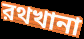
রথখানা